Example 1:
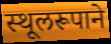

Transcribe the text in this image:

स्थूलरूपाने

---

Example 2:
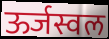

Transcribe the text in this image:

ऊर्जस्वल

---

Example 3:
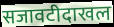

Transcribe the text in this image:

सजावटीदाखल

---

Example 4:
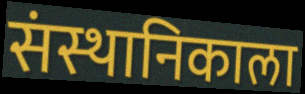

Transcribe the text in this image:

संस्थानिकाला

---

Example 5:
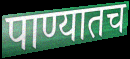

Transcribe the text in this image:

पाण्यातच